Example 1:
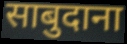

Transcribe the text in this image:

साबुदाना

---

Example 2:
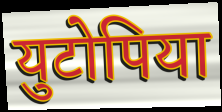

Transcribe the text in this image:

युटोपिया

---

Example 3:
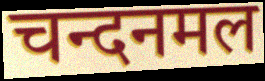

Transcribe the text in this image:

चन्दनमल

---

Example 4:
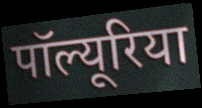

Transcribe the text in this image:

पॉल्यूरिया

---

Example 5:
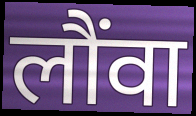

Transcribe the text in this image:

लौंवा